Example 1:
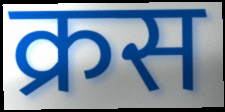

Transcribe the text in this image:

क्रस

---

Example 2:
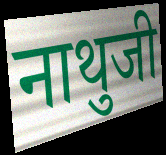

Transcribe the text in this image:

नाथुजी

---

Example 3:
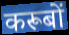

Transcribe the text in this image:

करूबों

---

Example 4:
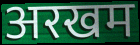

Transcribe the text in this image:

अरखम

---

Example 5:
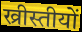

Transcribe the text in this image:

ख्रीस्तीयों